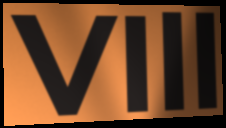
VIll